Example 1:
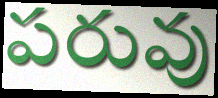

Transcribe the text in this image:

పరువు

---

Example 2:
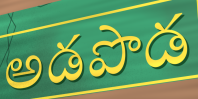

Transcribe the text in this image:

అడపొడ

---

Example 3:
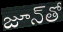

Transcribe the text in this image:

జూన్‌తో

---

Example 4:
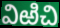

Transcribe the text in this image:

విఱిచి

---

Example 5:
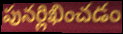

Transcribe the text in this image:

పునర్లిఖించడం